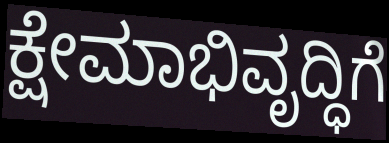
ಕ್ಷೇಮಾಭಿವೃದ್ಧಿಗೆ